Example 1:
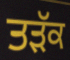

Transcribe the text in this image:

ਤੜੱਕ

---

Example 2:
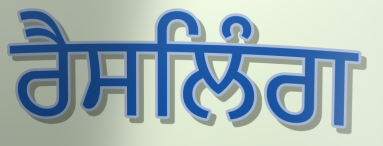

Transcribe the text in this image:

ਰੈਸਲਿੰਗ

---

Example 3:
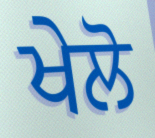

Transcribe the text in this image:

ਖੇਲੋ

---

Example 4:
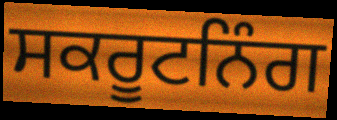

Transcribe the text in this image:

ਸਕਰੂਟਨਿੰਗ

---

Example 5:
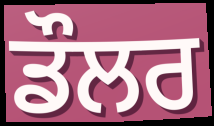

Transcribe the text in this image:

ਡੌਲਰ